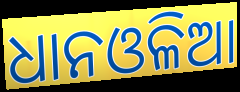
ଧାନଓଳିଆ